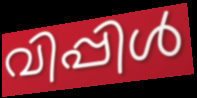
വിപ്പിൾ